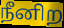
நீனிற